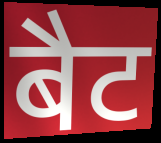
बैट